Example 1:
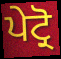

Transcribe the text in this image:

ਪੇਟ੍ਰੋ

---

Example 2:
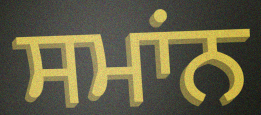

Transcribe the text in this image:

ਸਮਾਂਨ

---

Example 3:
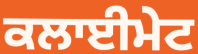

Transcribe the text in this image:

ਕਲਾਈਮੇਟ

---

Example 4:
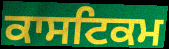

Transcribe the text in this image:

ਕਾਸਟਿਕਮ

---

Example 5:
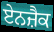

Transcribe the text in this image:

ਏਨਜ਼ੈਕ